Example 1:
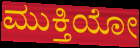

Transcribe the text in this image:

ಮುಕ್ತಿಯೋ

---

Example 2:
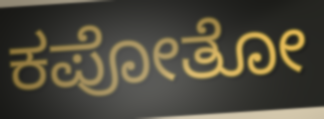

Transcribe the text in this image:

ಕಪೋತೋ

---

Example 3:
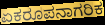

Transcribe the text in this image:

ಏಕರೂಪನಾಗರಿಕ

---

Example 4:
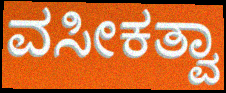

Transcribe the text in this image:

ವಸೀಕತ್ವಾ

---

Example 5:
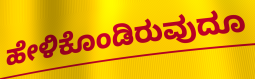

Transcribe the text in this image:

ಹೇಳಿಕೊಂಡಿರುವುದೂ